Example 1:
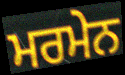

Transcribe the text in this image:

ਮਰਮੇਨ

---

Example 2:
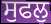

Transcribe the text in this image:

ਸੁਫਲੁ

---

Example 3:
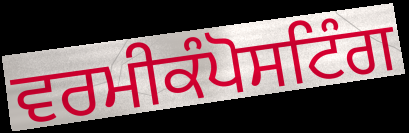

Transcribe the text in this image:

ਵਰਮੀਕੰਪੋਸਟਿੰਗ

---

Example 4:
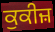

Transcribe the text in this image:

ਕੁਕੀਜ਼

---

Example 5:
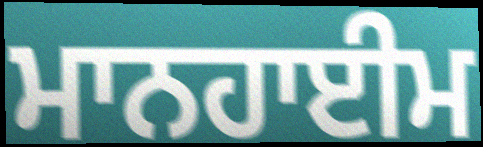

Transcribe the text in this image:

ਮਾਨਹਾਈਮ